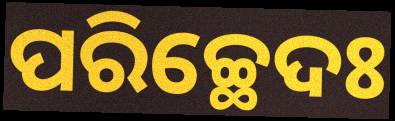
ପରିଚ୍ଛେଦଃ